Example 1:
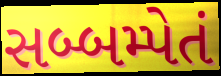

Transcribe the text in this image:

સબ્બમ્પેતં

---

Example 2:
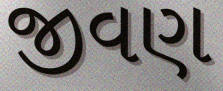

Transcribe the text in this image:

જીવણ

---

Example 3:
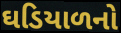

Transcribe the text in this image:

ઘડિયાળનો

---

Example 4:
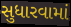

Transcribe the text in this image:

સુધારવામાં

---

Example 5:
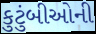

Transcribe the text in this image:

કુટુંબીઓની